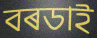
বৰডাই